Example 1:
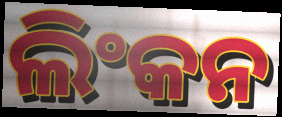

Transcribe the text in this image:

ଲିଂକନ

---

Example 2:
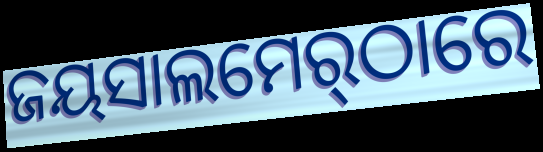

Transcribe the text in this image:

ଜୟସାଲମେର୍‌ଠାରେ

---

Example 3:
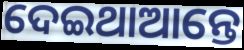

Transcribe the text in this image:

ଦେଇଥାଆନ୍ତେ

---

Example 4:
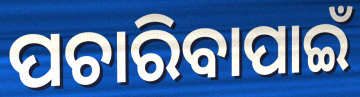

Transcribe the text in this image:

ପଚାରିବାପାଇଁ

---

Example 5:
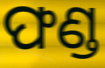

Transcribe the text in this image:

ଫଣ୍ଡ